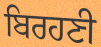
ਬਿਰਹਣੀ